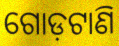
ଗୋଡ଼ଟାଣି